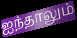
ஐந்தாலும்